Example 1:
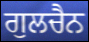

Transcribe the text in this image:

ਗੁਲਚੈਨ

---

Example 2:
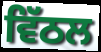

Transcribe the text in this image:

ਵਿੱਠਲ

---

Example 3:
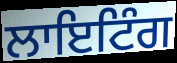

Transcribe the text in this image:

ਲਾਇਟਿੰਗ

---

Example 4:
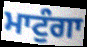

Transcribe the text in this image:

ਮਾਟੁੰਗਾ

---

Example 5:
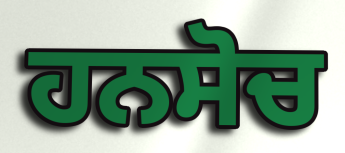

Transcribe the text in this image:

ਹਨਸੋਚ